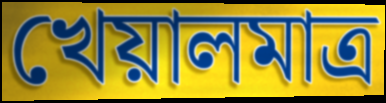
খেয়ালমাত্র